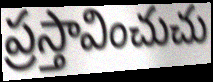
ప్రస్తావించుచు